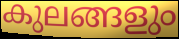
കുലങ്ങളും